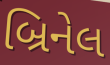
બ્રિનેલ